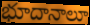
భూదానాలూ